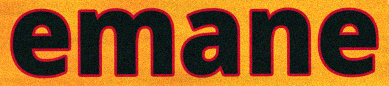
emane